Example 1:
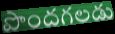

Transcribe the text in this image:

పొందగలడు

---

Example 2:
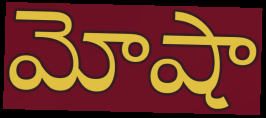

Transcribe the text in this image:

మోషా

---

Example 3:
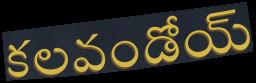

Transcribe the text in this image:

కలవండోయ్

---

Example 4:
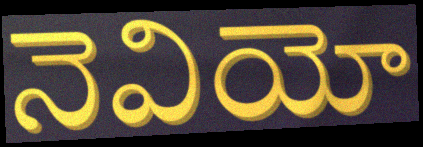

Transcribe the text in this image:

నెవియో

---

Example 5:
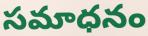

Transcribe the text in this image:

సమాధనం